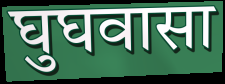
घुघवासा